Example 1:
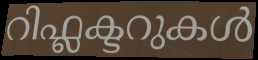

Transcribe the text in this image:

റിഫ്ലക്ടറുകൾ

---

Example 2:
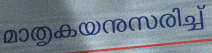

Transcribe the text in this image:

മാതൃകയനുസരിച്ച്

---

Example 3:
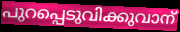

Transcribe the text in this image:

പുറപ്പെടുവിക്കുവാന്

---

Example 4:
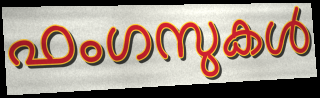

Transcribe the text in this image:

ഫംഗസുകൾ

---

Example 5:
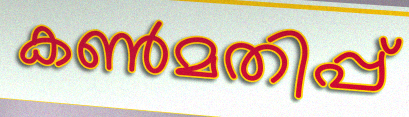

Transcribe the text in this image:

കൺമതിപ്പ്